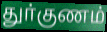
துர்குணம்